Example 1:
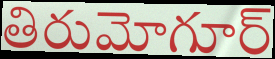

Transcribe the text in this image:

తిరుమోగూర్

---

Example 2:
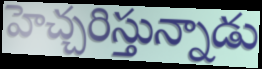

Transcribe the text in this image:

హెచ్చరిస్తున్నాడు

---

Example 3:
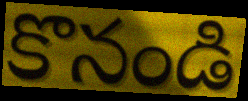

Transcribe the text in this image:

కొనండి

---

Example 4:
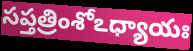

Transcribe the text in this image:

సప్తత్రింశోఽధ్యాయః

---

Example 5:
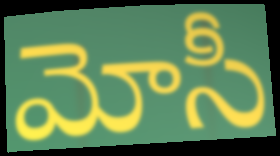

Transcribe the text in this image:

మోసీ